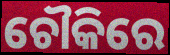
ଚୌକିରେ